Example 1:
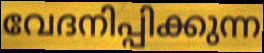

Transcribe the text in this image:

വേദനിപ്പിക്കുന്ന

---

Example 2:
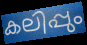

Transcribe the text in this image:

കലിപ്പും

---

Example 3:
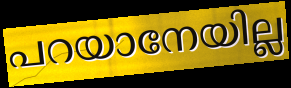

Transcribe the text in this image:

പറയാനേയില്ല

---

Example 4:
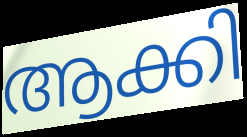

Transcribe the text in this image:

ആക്കി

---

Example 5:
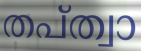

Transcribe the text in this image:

തപ്ത്വാ